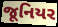
જૂનિયર